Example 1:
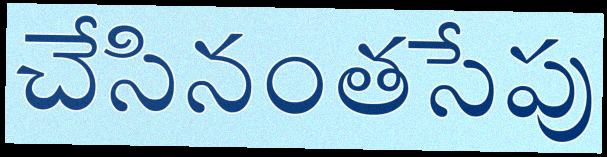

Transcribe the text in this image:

చేసినంతసేపు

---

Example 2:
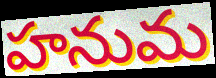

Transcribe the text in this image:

హనుమ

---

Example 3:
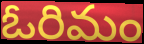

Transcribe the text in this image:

ఓరిమం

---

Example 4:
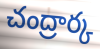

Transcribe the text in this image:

చంద్రార్క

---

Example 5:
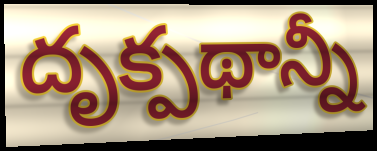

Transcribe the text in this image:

దృక్పథాన్నీ